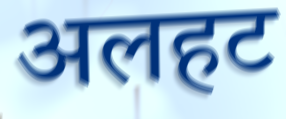
अलहट